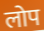
लोप